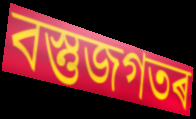
বস্তুজগতৰ